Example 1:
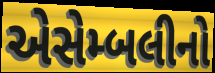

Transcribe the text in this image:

એસેમ્બલીનો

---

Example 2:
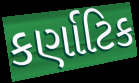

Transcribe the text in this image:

કર્ણાટિક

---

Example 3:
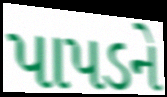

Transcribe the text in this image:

પાપડને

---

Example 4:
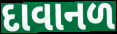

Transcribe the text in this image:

દાવાનળ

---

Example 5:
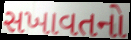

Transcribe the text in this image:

સખાવતનો